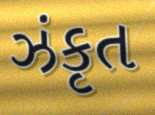
ઝંકૃત